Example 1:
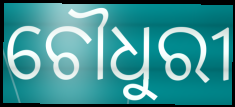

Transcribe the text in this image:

ଚୌଧୁରୀ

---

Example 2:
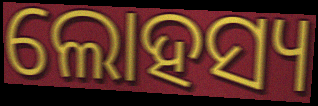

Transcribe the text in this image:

ଲୋହସ୍ୟ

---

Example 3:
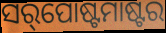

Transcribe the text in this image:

ସର୍‌ପୋଷ୍ଟମାଷ୍ଟର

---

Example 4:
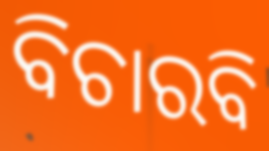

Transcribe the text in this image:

ବିଚାରବି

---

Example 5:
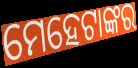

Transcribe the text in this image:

ମେହେଟାଙ୍କର